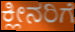
ಕ್ಲೀನರಿಗೆ